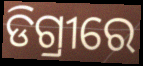
ଡିଗ୍ରୀରେ